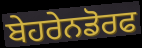
ਬੇਹਰੇਨਡੋਰਫ